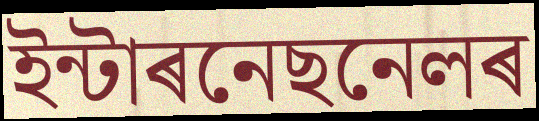
ইন্টাৰনেছনেলৰ